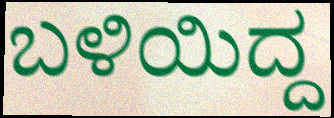
ಬಳಿಯಿದ್ದ